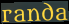
randa